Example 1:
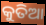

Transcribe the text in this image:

କୁତିଆ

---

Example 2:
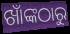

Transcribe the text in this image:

ଖାଁଙ୍କଠାରୁ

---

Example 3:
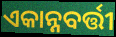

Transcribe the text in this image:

ଏକାନ୍ନବର୍ତ୍ତୀ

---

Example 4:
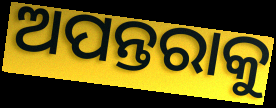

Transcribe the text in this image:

ଅପନ୍ତରାକୁ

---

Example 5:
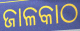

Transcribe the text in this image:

ଜାଳକାଠ